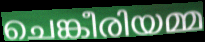
ചെങ്കീരിയമ്മ